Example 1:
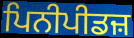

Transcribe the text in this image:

ਪਿਨੀਪੀਡਜ਼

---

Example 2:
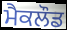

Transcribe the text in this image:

ਮੈਕਲੌਡ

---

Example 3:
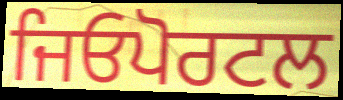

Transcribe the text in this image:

ਜਿਓਪੋਰਟਲ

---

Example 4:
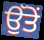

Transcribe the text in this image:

ਉੱਤੇਂ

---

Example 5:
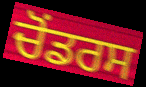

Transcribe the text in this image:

ਚੋਂਡਰਸ